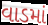
વાડમાં